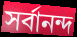
সর্বানন্দ